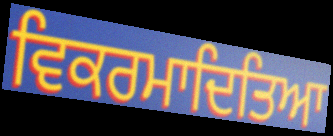
ਵਿਕਰਮਾਦਿਤਿਆ